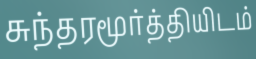
சுந்தரமூர்த்தியிடம்